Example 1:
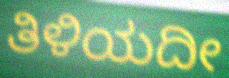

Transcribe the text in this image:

ತಿಳಿಯದೀ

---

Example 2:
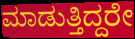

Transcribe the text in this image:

ಮಾಡುತ್ತಿದ್ದರೇ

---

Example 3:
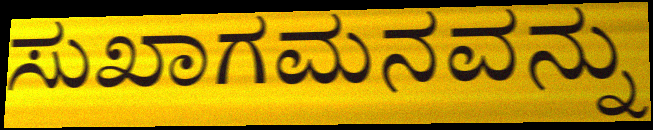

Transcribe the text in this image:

ಸುಖಾಗಮನವನ್ನು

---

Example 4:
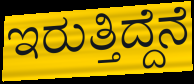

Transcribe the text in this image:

ಇರುತ್ತಿದ್ದೆನೆ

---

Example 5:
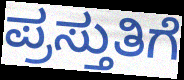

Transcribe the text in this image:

ಪ್ರಸ್ತುತಿಗೆ